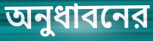
অনুধাবনের